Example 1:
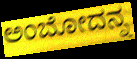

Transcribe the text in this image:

ಅಂಬೋದನ್ನ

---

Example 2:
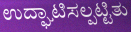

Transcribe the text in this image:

ಉದ್ಘಾಟಿಸಲ್ಪಟ್ಟಿತು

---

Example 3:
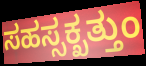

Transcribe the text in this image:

ಸಹಸ್ಸಕ್ಖತ್ತುಂ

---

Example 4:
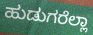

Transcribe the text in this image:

ಹುಡುಗರೆಲ್ಲಾ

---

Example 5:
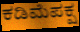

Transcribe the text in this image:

ಕಡಿಮೆಪಕ್ಷ